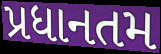
પ્રધાનતમ